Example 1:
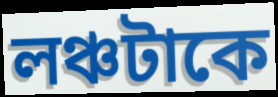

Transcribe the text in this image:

লঞ্চটাকে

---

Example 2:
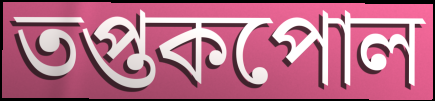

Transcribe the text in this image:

তপ্তকপোল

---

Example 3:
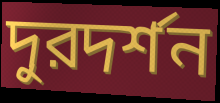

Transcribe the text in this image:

দুরদর্শন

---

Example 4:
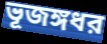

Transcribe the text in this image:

ভূজঙ্গধর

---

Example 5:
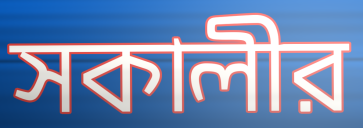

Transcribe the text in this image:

সকালীর